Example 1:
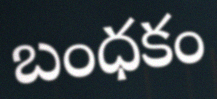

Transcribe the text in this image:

బంధకం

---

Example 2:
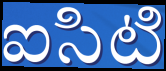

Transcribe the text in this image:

ఐసిటి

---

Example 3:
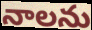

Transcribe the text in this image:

నాలను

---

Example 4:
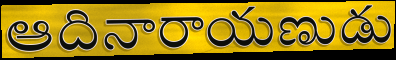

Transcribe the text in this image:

ఆదినారాయణుడు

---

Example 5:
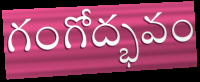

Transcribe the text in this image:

గంగోద్భవం